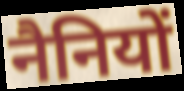
नैनियों